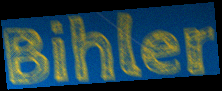
Bihler